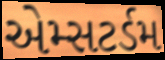
એમ્સટર્ડમ